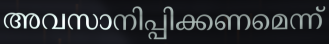
അവസാനിപ്പിക്കണമെന്ന്